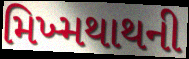
મિખ્મથાથની